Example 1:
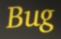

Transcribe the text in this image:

Bug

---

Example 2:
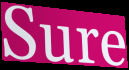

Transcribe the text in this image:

Sure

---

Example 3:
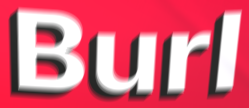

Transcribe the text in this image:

Burl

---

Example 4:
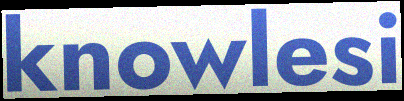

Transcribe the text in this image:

knowlesi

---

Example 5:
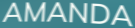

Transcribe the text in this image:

AMANDA